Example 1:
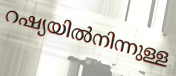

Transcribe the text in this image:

റഷ്യയിൽനിന്നുള്ള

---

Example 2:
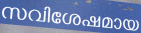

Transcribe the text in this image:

സവിശേഷമായ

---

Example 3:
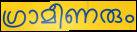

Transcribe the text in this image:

ഗ്രാമീണരും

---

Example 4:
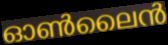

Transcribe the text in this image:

ഓൺലൈൻ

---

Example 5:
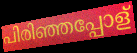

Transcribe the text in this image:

പിരിഞ്ഞപ്പോള്